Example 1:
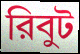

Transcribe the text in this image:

রিবুট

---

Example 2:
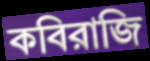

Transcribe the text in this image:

কবিরাজি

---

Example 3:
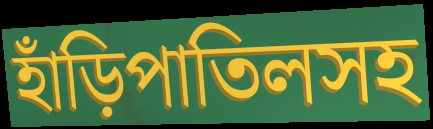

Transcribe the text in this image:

হাঁড়িপাতিলসহ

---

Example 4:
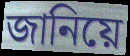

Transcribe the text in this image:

জানিয়ে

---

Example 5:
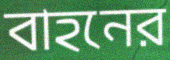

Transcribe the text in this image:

বাহনের